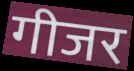
गीजर